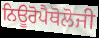
ਨਿਊਰੋਪੈਥੋਲੋਜੀ